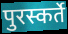
पुरस्कर्ते